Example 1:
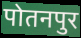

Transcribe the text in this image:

पोतनपुर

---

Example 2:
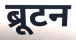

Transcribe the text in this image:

ब्रूटन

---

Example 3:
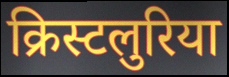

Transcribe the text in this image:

क्रिस्टलुरिया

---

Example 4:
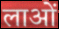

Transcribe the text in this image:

लाओं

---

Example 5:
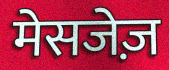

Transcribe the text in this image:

मेसजेज़